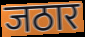
जठार